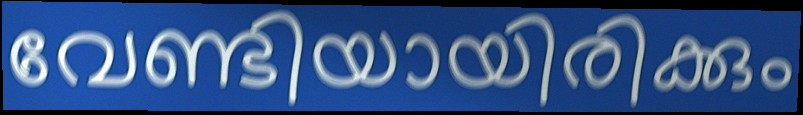
വേണ്ടിയായിരിക്കും